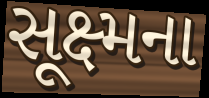
સૂક્ષ્મના